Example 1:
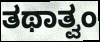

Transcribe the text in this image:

ತಥಾತ್ವಂ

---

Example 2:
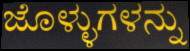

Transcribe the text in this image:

ಜೊಳ್ಳುಗಳನ್ನು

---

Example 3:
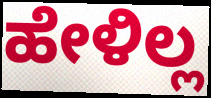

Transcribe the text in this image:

ಹೇಳಿಲ್ಲ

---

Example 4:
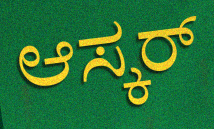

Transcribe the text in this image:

ಆಸ್ಕರ್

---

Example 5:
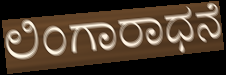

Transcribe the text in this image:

ಲಿಂಗಾರಾಧನೆ